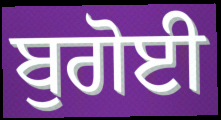
ਬੁਗੋਈ